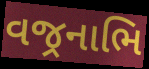
વજ્રનાભિ